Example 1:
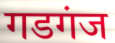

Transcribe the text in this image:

गडगंज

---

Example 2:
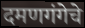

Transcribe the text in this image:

दमणगंगेचे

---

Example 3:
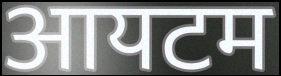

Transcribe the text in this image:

आयटम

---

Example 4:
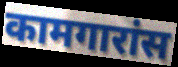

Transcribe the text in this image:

कामगारांस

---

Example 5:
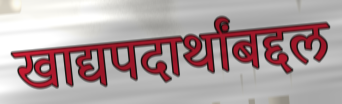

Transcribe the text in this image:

खाद्यपदार्थांबद्दल